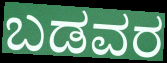
ಬಡವರ